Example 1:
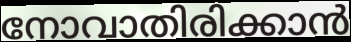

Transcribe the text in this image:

നോവാതിരിക്കാൻ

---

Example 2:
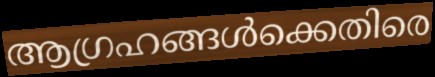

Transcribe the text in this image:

ആഗ്രഹങ്ങൾക്കെതിരെ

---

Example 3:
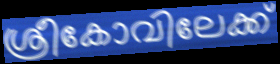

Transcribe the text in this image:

ശ്രീകോവിലേക്ക്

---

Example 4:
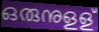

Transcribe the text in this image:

ഒരുനുളള്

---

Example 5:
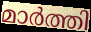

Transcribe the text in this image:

മാർത്തി